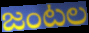
జంటల